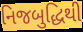
નિજબુદ્ધિથી